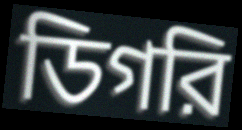
ডিগরি